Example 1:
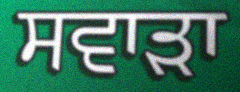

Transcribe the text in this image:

ਸਵਾੜਾ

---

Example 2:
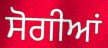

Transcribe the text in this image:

ਸੋਗੀਆਂ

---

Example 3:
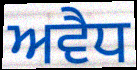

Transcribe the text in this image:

ਅਵੈਧ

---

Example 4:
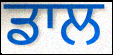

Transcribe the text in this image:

ਡਾਲ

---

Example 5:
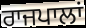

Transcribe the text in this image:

ਰਾਜਪਾਲਾਂ